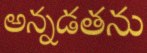
అన్నడతను